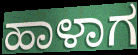
ಹಾಳಾಗ